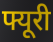
फ्यूरी